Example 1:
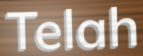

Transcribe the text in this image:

Telah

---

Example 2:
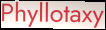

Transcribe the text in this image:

Phyllotaxy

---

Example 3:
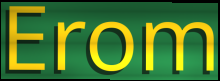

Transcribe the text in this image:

Erom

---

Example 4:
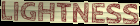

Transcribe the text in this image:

LIGHTNESS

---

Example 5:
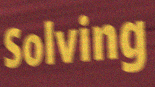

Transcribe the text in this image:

Solving